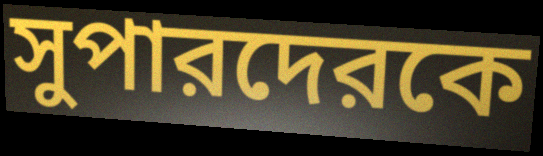
সুপারদেরকে